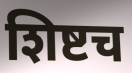
शिष्टच